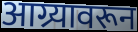
आग्र्यावरून